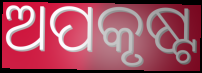
ଅପକୃଷ୍ଟ